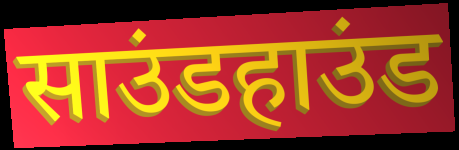
साउंडहाउंड